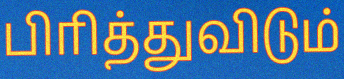
பிரித்துவிடும்